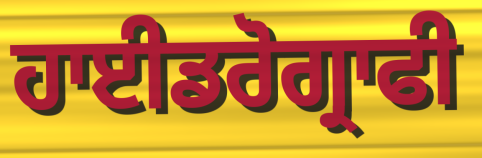
ਹਾਈਡਰੋਗ੍ਰਾਫੀ